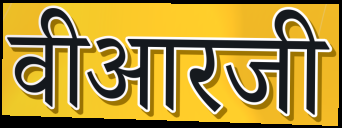
वीआरजी